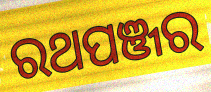
ରଥପଞ୍ଜର